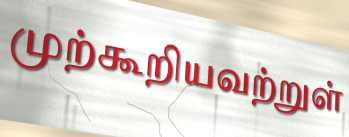
முற்கூறியவற்றுள்